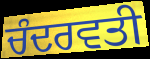
ਚੰਦਰਵਤੀ